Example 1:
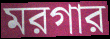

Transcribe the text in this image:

মরগার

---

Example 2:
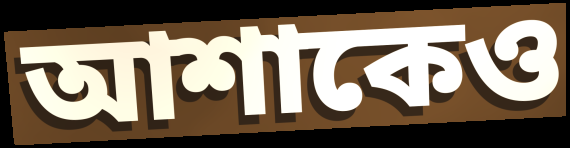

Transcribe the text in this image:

আশাকেও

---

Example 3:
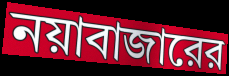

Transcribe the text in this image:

নয়াবাজারের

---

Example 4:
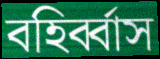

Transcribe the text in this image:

বহির্ব্বাস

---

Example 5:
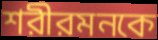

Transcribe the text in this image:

শরীরমনকে